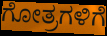
ಗೋತ್ರಗಳಿಗೆ